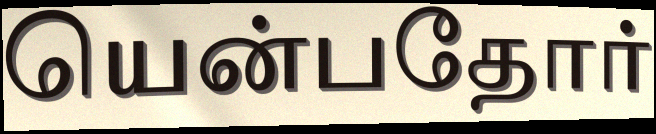
யென்பதோர்